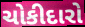
ચોકીદારો